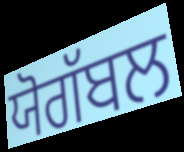
ਯੋਗੱਬਲ